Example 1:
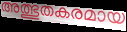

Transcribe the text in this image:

അത്ഭുതകരമായ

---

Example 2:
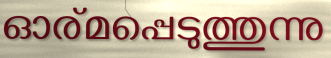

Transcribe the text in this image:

ഓര്മപ്പെടുത്തുന്നു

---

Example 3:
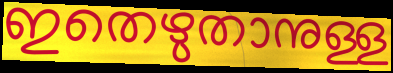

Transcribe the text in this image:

ഇതെഴുതാനുള്ള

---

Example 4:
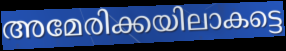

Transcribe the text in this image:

അമേരിക്കയിലാകട്ടെ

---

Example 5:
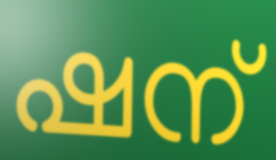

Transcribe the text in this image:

ഷന്